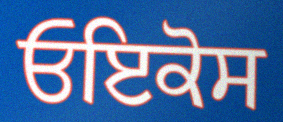
ਓਇਕੋਸ